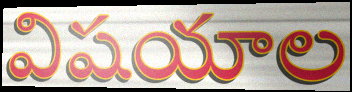
విషయాల